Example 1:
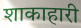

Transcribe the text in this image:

शाकाहारी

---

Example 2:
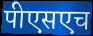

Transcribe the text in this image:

पीएसएच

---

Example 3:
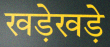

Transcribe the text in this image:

खड़ेखड़े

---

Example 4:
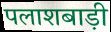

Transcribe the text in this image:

पलाशबाड़ी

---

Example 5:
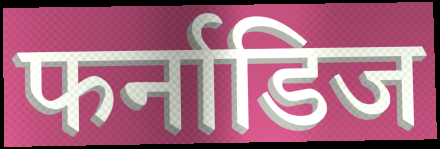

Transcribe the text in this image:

फर्नाडिज